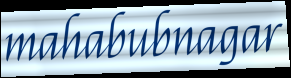
mahabubnagar